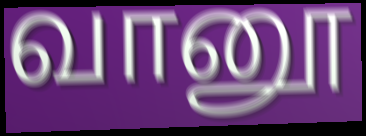
வானூ